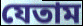
যেতাম